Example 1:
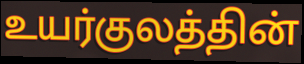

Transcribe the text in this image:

உயர்குலத்தின்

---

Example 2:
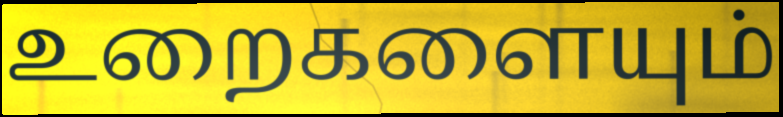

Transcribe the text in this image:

உறைகளையும்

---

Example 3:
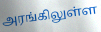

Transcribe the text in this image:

அரங்கிலுள்ள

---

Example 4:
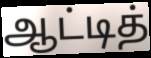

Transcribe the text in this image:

ஆட்டித்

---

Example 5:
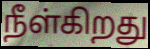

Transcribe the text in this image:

நீள்கிறது